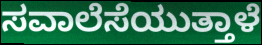
ಸವಾಲೆಸೆಯುತ್ತಾಳೆ